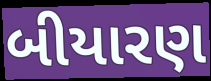
બીયારણ